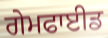
ਗੇਮਫਾਈਡ